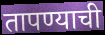
तापण्याची